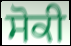
ਸੋਕੀ